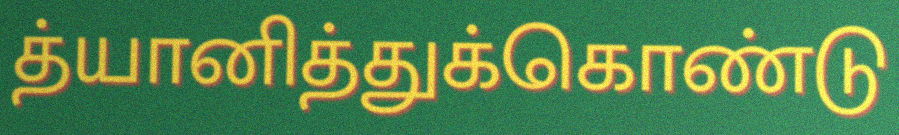
த்யானித்துக்கொண்டு